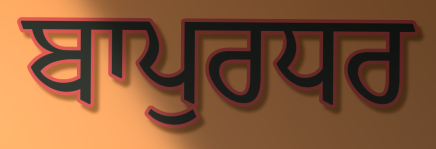
ਬਾਪੁਰਧਰ